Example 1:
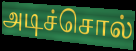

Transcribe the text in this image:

அடிச்சொல்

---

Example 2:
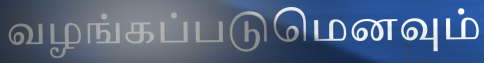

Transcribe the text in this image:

வழங்கப்படுமெனவும்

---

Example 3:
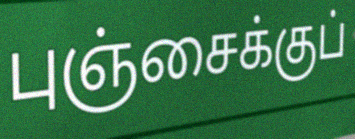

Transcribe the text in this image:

புஞ்சைக்குப்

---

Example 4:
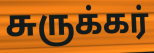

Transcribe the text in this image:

சுருக்கர்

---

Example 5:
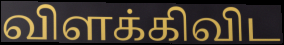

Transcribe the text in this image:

விளக்கிவிட